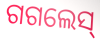
ଗଗଲେସ୍